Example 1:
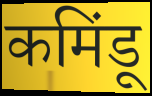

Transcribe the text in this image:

कमिंडू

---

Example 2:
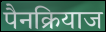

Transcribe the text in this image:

पैनक्रियाज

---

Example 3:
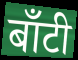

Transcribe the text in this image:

बाँटी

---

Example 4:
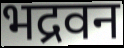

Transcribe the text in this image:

भद्रवन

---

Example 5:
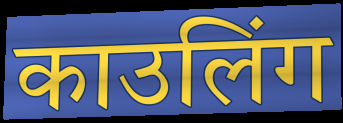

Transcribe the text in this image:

काउलिंग